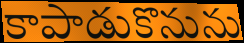
కాపాడుకొనును